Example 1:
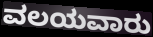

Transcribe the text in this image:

ವಲಯವಾರು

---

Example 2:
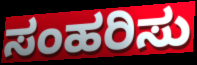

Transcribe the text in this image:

ಸಂಹರಿಸು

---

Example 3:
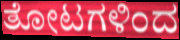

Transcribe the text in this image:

ತೋಟಗಳಿಂದ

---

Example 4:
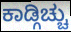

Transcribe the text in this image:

ಕಾಡ್ಗಿಚ್ಚು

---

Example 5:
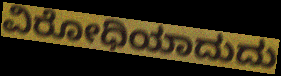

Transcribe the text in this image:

ವಿರೋಧಿಯಾದುದು